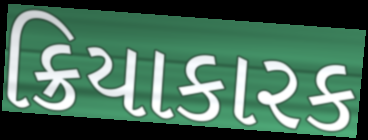
ક્રિયાકારક